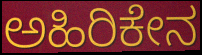
ಅಹಿರಿಕೇನ